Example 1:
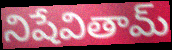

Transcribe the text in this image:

నిషేవితామ్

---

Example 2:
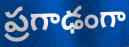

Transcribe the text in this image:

ప్రగాఢంగా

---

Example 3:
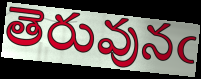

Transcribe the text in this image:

తెరువునఁ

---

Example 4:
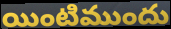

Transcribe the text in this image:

యింటిముందు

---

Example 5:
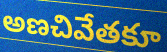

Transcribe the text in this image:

అణచివేతకూ